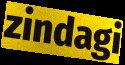
zindagi